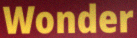
Wonder